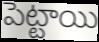
పెట్టాయి